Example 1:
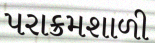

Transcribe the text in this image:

પરાક્રમશાળી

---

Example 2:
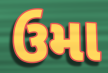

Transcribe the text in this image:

ઉમા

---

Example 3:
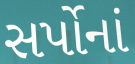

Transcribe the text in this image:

સર્પોનાં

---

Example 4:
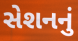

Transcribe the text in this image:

સેશનનું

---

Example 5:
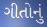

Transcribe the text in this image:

ગીતોનું